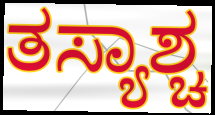
ತಸ್ಯಾಶ್ಚ